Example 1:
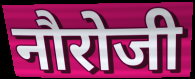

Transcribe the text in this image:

नौरोजी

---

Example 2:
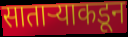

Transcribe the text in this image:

साताऱ्याकडून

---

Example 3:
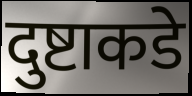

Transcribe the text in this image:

दुष्टाकडे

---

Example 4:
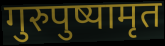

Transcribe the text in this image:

गुरुपुष्यामृत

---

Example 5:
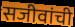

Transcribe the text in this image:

सजीवांची